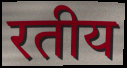
रतीय